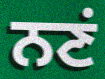
ਨਣਂ